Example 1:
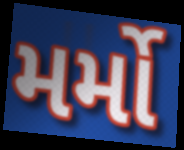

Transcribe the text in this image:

મર્મો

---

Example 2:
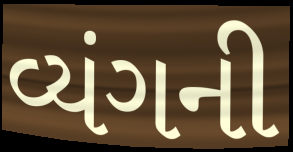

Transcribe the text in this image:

વ્યંગની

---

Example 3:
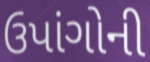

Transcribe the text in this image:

ઉપાંગોની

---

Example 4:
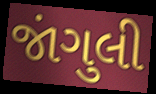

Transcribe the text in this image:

જાંગુલી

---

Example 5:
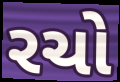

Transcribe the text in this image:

રચો